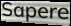
Sapere